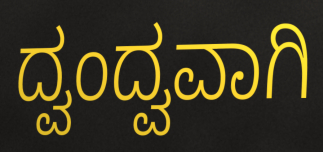
ದ್ವಂದ್ವವಾಗಿ